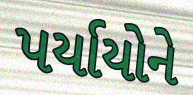
પર્યાયોને